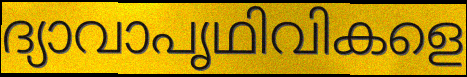
ദ്യാവാപൃഥിവികളെ